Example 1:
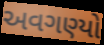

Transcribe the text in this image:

અવગણ્યો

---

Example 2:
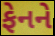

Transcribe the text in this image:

ફેનને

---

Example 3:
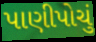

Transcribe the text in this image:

પાણીપોચું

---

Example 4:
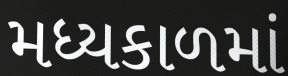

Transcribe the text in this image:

મધ્યકાળમાં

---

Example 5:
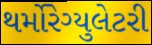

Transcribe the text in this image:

થર્મોરેગ્યુલેટરી